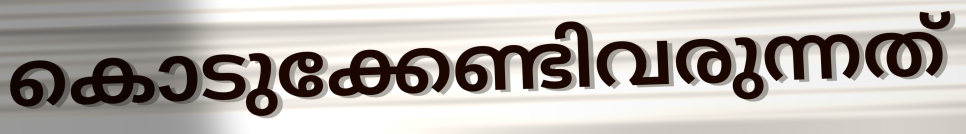
കൊടുക്കേണ്ടിവരുന്നത്